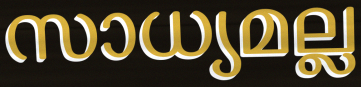
സാധ്യമല്ല